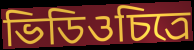
ভিডিওচিত্রে